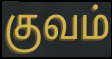
குவம்